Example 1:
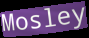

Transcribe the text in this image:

Mosley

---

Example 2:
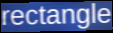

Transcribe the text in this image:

rectangle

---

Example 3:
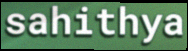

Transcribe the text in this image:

sahithya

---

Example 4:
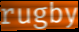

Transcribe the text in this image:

rugby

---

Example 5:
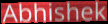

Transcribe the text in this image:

Abhishek